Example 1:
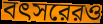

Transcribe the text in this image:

বৎসরেরও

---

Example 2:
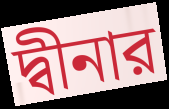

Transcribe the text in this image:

দ্বীনার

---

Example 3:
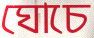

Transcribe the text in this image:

ঘোচে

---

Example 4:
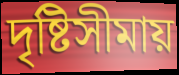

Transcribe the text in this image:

দৃষ্টিসীমায়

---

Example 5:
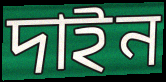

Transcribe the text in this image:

দাইন